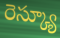
రెస్క్యూ